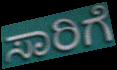
ಸಾರಿಗೆ